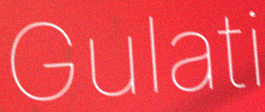
Gulati